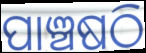
ପାଞ୍ଚଷଠି